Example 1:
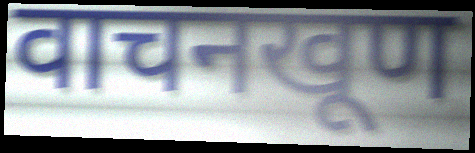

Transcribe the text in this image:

वाचनखूण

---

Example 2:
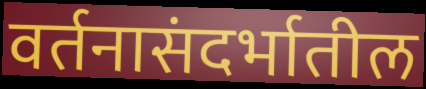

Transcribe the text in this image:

वर्तनासंदर्भातील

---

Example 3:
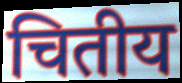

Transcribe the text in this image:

चितीय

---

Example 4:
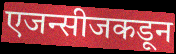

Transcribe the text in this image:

एजन्सीजकडून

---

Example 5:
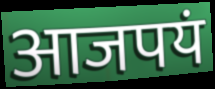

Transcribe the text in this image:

आजपयं